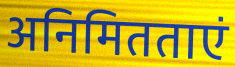
अनिमितताएं